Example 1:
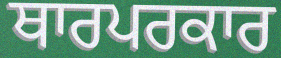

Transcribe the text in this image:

ਥਾਰਪਰਕਾਰ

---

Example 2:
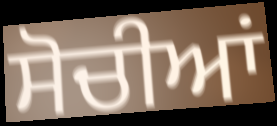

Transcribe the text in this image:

ਸੋਚੀਆਂ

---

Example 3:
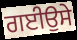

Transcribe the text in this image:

ਗਈਉਸੇ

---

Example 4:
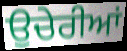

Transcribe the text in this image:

ਉਚੇਰੀਆਂ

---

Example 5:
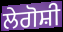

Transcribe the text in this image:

ਲੇਗੋਸ਼ੀ